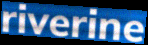
riverine